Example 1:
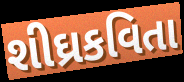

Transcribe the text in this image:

શીઘ્રકવિતા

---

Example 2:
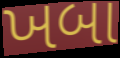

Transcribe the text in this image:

ખબા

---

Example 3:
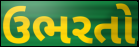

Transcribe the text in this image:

ઉભરતો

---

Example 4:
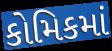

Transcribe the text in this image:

કોમિકમાં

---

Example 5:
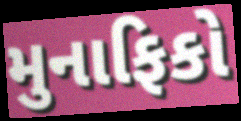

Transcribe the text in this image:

મુનાફિકો